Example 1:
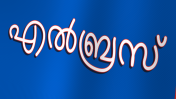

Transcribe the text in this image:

എൽബ്രസ്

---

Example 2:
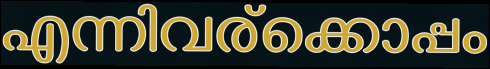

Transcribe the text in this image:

എന്നിവര്ക്കൊപ്പം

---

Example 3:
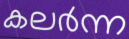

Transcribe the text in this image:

കലർന്ന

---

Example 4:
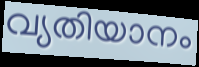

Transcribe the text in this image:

വ്യതിയാനം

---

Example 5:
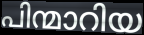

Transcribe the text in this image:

പിന്മാറിയ